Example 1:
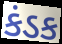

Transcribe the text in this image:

કંડક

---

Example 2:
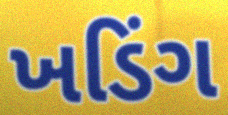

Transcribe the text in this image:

ખડિંગ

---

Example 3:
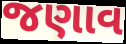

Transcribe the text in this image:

જણાવ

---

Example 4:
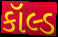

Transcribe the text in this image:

કૉલ્ડ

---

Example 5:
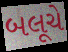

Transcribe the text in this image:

બલૂચે